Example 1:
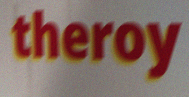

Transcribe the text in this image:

theroy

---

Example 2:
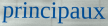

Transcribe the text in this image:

principaux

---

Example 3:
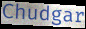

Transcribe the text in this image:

Chudgar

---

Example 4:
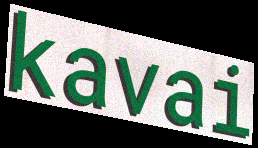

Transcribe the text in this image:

kavai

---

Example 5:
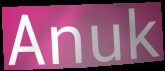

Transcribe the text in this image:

Anuk